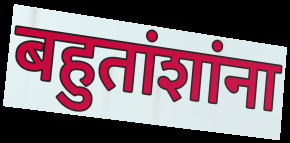
बहुतांशांना